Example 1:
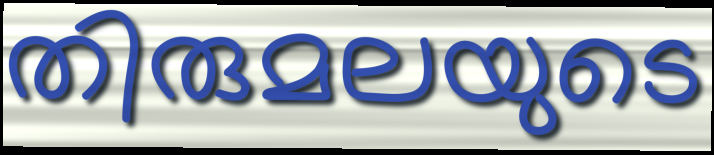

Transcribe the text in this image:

തിരുമലയുടെ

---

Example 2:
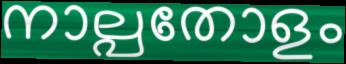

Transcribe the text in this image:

നാല്പതോളം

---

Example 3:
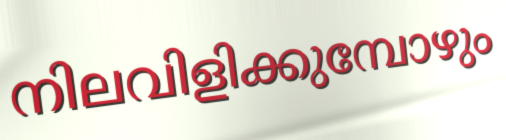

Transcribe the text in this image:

നിലവിളിക്കുമ്പോഴും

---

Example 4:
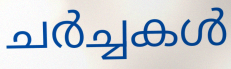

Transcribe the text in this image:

ചർച്ചകൾ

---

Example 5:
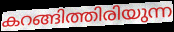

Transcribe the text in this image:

കറങ്ങിത്തിരിയുന്ന